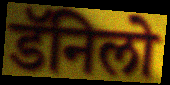
डॅनिलो